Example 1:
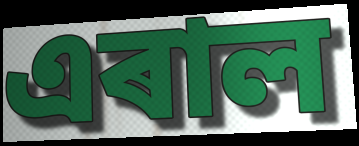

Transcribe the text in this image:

এৰাল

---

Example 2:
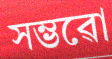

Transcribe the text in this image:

সম্ভৱো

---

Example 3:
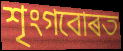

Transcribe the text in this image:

শৃংগবোৰত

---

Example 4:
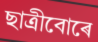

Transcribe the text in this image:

ছাত্ৰীবোৰে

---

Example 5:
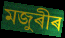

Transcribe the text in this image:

মজুৰীৰ